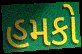
હમકો